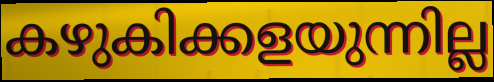
കഴുകിക്കളയുന്നില്ല